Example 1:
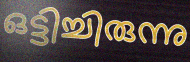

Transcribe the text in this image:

ഒട്ടിച്ചിരുന്നു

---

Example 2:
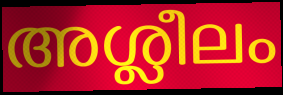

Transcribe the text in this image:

അശ്ലീലം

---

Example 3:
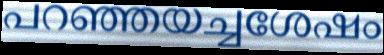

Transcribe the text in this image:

പറഞ്ഞയച്ചശേഷം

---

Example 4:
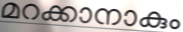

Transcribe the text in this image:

മറക്കാനാകും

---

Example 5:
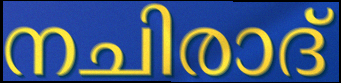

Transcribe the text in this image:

നചിരാദ്